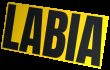
LABIA